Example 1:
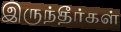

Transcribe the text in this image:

இருந்தீர்கள்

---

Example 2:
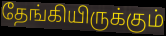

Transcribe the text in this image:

தேங்கியிருக்கும்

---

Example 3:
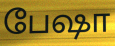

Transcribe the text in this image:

பேஷா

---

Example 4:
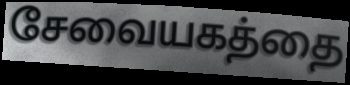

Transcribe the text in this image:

சேவையகத்தை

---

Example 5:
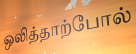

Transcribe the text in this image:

ஒலித்தாற்போல்